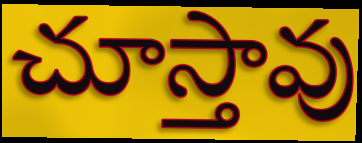
చూస్తావు